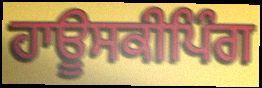
ਹਾਊਸਕੀਪਿੰਗ